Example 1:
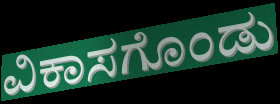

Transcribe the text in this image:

ವಿಕಾಸಗೊಂಡು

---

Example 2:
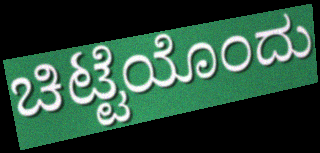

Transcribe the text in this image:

ಚಿಟ್ಟೆಯೊಂದು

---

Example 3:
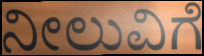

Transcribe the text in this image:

ನೀಲುವಿಗೆ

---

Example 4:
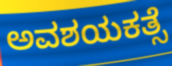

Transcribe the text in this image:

ಅವಶಯಕತ್ಸೆ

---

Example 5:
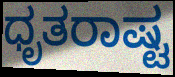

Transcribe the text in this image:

ಧೃತರಾಷ್ಟ